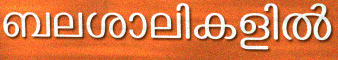
ബലശാലികളിൽ